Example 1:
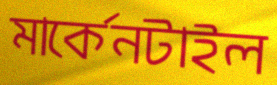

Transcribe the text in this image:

মার্কেনটাইল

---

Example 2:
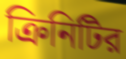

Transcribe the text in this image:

ক্রিনিটির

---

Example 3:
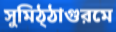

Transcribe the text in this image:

সুমিঠ্ঠাগুরমে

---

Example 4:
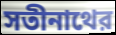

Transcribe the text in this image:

সতীনাথের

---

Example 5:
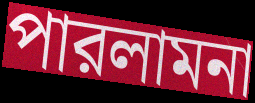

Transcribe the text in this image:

পারলামনা